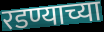
रडण्याच्या